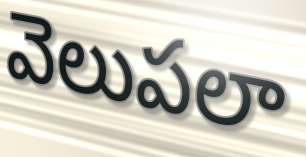
వెలుపలా